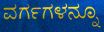
ವರ್ಗಗಳನ್ನೂ